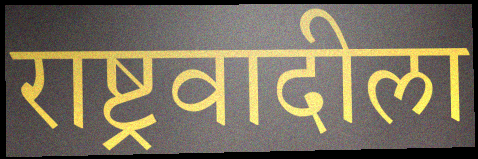
राष्ट्रवादीला